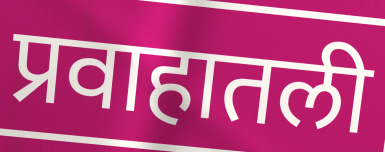
प्रवाहातली